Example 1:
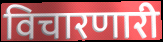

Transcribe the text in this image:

विचारणारी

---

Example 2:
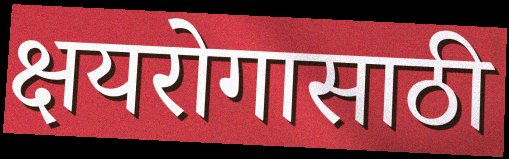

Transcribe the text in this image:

क्षयरोगासाठी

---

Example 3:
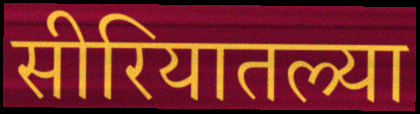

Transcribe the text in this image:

सीरियातल्या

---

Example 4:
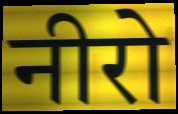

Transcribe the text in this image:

नीरो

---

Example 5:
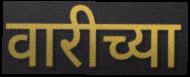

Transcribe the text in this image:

वारीच्या